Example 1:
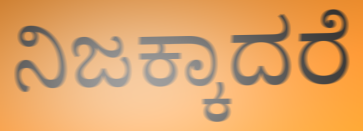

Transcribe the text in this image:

ನಿಜಕ್ಕಾದರೆ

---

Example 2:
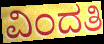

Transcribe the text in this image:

ವಿಂದತಿ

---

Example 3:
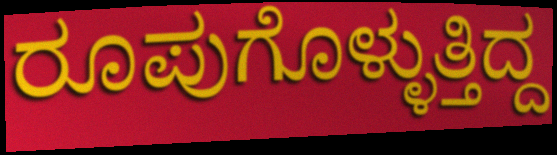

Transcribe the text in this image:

ರೂಪುಗೊಳ್ಳುತ್ತಿದ್ದ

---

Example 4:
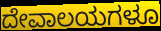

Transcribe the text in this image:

ದೇವಾಲಯಗಳೂ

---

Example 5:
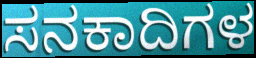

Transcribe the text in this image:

ಸನಕಾದಿಗಳ